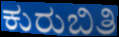
ಕುರುಬಿತಿ